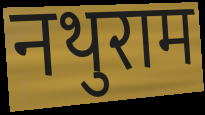
नथुराम